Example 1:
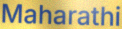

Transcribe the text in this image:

Maharathi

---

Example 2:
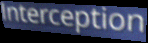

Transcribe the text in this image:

Interception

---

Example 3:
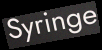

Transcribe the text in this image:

Syringe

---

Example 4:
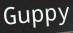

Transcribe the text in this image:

Guppy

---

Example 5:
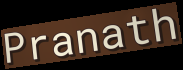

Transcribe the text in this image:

Pranath